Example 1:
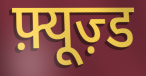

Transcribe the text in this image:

फ़्यूज़्ड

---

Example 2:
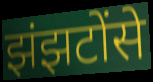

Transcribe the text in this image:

झंझटोंसे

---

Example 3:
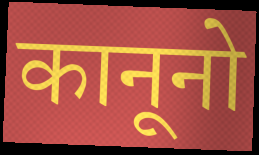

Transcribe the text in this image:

कानूनो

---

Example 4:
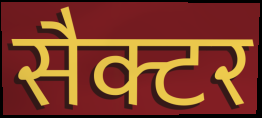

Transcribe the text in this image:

सैक्टर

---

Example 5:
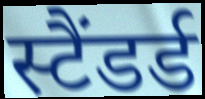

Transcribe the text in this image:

स्‍टैंडर्ड